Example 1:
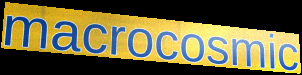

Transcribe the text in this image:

macrocosmic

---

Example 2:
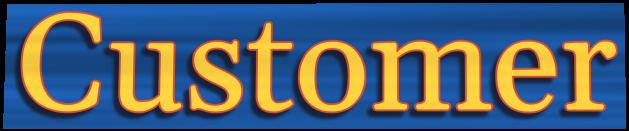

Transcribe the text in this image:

Customer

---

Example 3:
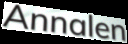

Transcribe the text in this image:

Annalen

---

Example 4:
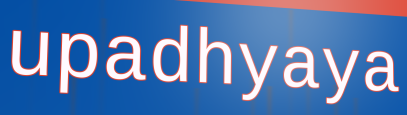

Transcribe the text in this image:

upadhyaya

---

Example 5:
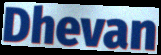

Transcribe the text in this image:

Dhevan